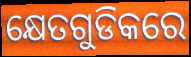
କ୍ଷେତଗୁଡିକରେ